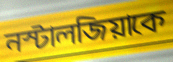
নস্টালজিয়াকে